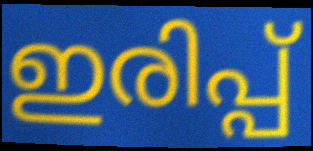
ഇരിപ്പ്